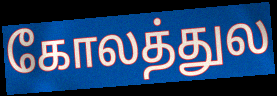
கோலத்துல